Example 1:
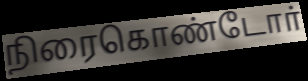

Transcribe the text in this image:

நிரைகொண்டோர்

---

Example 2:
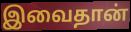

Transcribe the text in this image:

இவைதான்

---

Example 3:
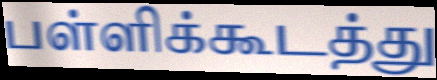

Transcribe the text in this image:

பள்ளிக்கூடத்து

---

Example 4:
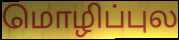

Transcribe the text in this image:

மொழிப்புல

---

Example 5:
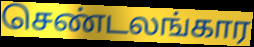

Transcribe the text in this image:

செண்டலங்கார